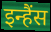
इन्हैंस